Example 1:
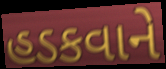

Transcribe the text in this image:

હડકવાને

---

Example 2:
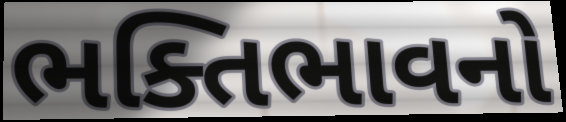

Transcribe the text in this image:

ભક્તિભાવનો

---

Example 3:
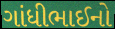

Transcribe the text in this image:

ગાંધીભાઈનો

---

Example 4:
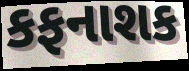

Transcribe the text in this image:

કફનાશક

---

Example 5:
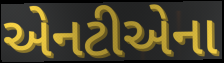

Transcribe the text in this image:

એનટીએના